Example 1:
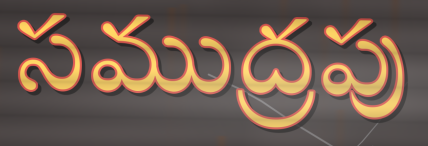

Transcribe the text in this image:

సముద్రపు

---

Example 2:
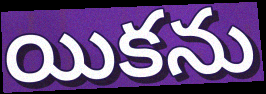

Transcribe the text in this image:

యికను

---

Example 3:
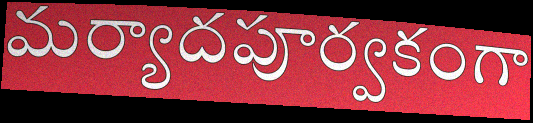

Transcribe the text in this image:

మర్యాదపూర్వకంగా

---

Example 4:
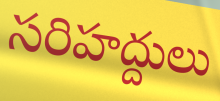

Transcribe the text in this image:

సరిహద్దులు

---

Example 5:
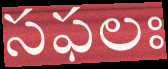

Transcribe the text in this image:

సఫలః